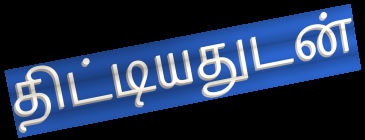
திட்டியதுடன்